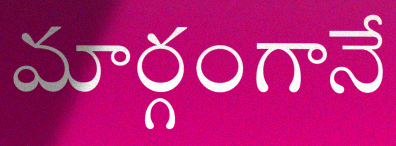
మార్గంగానే